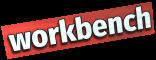
workbench